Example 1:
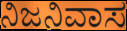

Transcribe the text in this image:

ನಿಜನಿವಾಸ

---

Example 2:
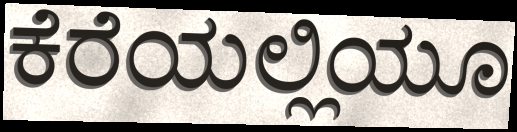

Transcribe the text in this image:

ಕೆರೆಯಲ್ಲಿಯೂ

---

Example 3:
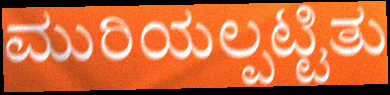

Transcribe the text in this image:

ಮುರಿಯಲ್ಪಟ್ಟಿತು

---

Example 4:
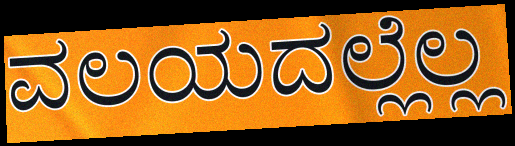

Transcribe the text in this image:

ವಲಯದಲ್ಲೆಲ್ಲ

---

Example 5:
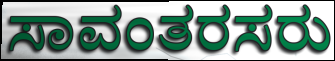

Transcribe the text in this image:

ಸಾವಂತರಸರು